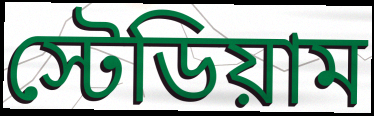
স্টেডিয়াম